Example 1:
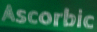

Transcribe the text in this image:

Ascorbic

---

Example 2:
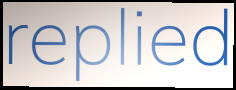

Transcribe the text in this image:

replied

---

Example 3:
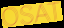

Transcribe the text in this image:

OSAT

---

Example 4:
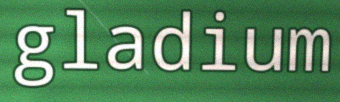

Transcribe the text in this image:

gladium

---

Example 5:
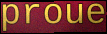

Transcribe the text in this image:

proue